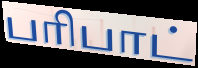
பரிபாட்